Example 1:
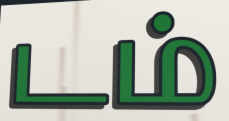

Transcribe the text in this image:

டம்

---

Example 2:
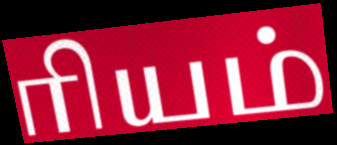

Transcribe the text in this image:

ரியம்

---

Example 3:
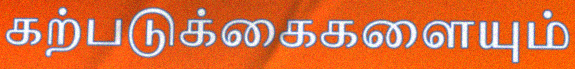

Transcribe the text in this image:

கற்படுக்கைகளையும்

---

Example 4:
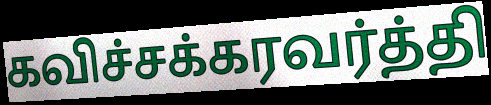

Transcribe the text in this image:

கவிச்சக்கரவர்த்தி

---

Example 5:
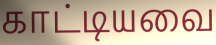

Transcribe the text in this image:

காட்டியவை